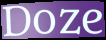
Doze